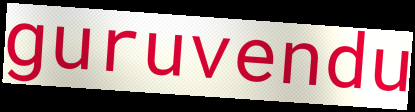
guruvendu